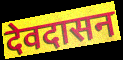
देवदासन